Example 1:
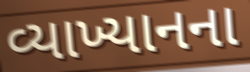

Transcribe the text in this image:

વ્યાખ્યાનના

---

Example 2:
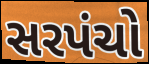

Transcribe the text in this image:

સરપંચો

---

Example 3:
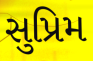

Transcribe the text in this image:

સુપ્રિમ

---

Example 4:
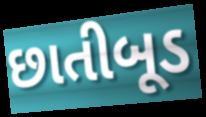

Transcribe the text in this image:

છાતીબૂડ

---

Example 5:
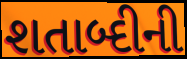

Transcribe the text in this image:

શતાબ્દીની